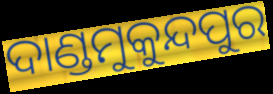
ଦାଣ୍ଡମୁକୁନ୍ଦପୁର